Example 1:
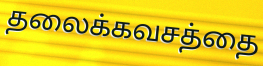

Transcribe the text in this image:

தலைக்கவசத்தை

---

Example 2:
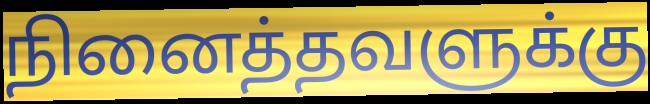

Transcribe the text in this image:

நினைத்தவளுக்கு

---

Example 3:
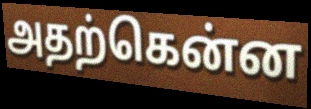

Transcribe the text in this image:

அதற்கென்ன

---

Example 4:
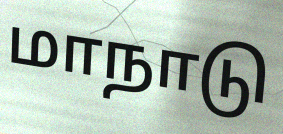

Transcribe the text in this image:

மாநாடு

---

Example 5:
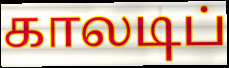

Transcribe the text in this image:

காலடிப்